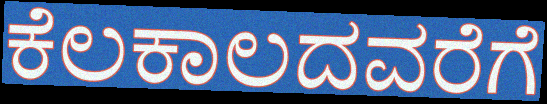
ಕೆಲಕಾಲದವರೆಗೆ